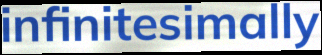
infinitesimally